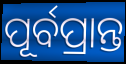
ପୂର୍ବପ୍ରାନ୍ତ